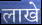
लाखे